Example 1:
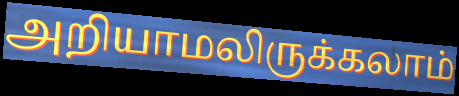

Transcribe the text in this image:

அறியாமலிருக்கலாம்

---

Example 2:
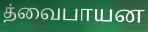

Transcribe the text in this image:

த்வைபாயன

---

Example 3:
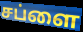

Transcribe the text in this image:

சப்ளை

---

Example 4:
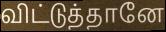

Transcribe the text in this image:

விட்டுத்தானே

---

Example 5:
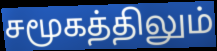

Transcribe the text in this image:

சமூகத்திலும்